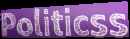
Politicss